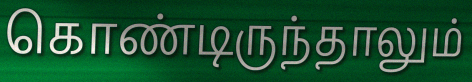
கொண்டிருந்தாலும்